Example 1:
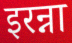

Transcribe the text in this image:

इरन्ना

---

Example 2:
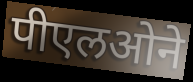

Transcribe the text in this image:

पीएलओने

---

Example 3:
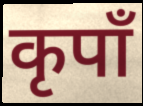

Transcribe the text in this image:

कृपाँ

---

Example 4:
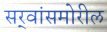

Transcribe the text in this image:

सर्वांसमोरील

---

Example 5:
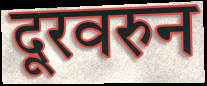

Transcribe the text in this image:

दूरवरुन